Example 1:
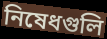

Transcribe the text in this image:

নিষেধগুলি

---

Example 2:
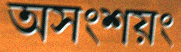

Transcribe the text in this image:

অসংশয়ং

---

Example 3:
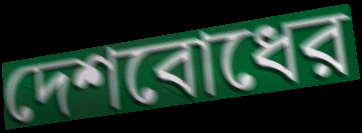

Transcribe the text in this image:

দেশবোধের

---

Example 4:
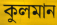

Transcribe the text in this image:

কুলমান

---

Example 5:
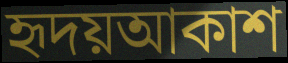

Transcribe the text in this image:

হৃদয়আকাশ